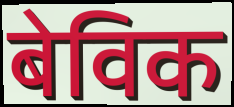
बेविक